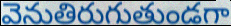
వెనుతిరుగుతుండగా